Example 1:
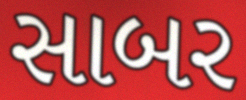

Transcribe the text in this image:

સાબર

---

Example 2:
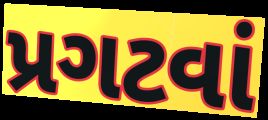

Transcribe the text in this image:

પ્રગટવાં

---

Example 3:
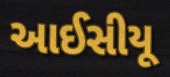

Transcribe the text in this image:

આઈસીયૂ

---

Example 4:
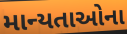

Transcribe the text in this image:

માન્યતાઓના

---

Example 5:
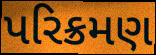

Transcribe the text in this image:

પરિક્રમણ